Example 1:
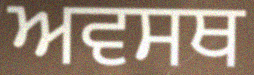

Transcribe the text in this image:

ਅਵਸਥ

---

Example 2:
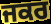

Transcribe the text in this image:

ਜਕਰ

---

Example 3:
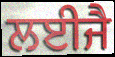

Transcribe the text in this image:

ਲਈਜੈ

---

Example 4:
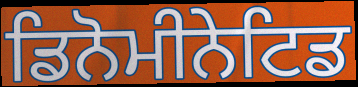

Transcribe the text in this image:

ਡਿਨੋਮੀਨੇਟਿਡ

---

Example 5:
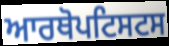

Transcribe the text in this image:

ਆਰਥੋਪਟਿਸਟਸ